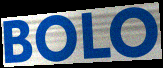
BOLO